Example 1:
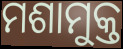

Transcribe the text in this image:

ମଶାମୁକ୍ତ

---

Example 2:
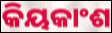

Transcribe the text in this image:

କିୟକାଂଶ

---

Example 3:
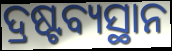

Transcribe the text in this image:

ଦ୍ରଷ୍ଟବ୍ୟସ୍ଥାନ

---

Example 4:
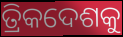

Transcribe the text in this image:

ତ୍ରିକଦେଶକୁ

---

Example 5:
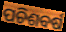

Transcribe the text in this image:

ପଚିଶବର୍ଷ